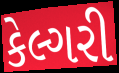
કેલ્ગરી